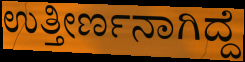
ಉತ್ತೀರ್ಣನಾಗಿದ್ದೆ